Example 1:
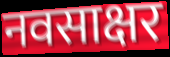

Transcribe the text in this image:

नवसाक्षर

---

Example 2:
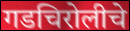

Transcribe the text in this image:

गडचिरोलीचे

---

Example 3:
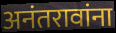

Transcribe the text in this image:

अनंतरावांना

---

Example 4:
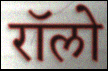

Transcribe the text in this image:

रॉलो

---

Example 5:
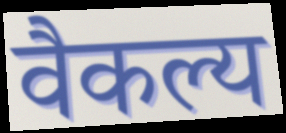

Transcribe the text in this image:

वैकल्य